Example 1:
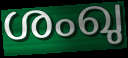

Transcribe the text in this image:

ശംഖു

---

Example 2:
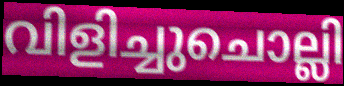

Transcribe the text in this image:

വിളിച്ചുചൊല്ലി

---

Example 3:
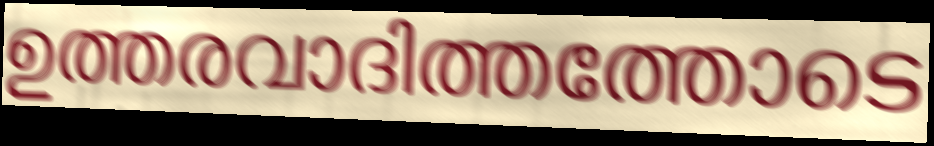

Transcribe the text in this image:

ഉത്തരവാദിത്തത്തോടെ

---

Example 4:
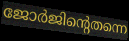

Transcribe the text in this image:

ജോർജിന്റെതന്നെ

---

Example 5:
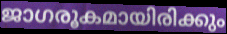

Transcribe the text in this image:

ജാഗരൂകമായിരിക്കും